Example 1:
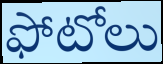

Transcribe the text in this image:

ఫోటోలు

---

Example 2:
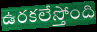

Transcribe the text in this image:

ఉరకలేస్తోంది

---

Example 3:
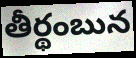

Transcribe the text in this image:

తీర్థంబున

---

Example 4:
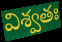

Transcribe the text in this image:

విశ్వతః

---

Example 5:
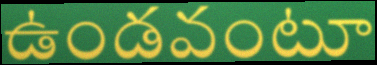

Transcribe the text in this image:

ఉండవంటూ